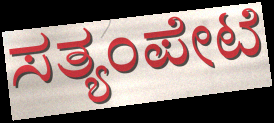
ಸತ್ಯಂಪೇಟೆ